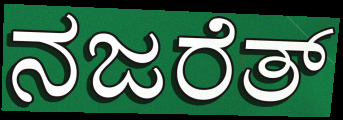
ನಜರೆತ್